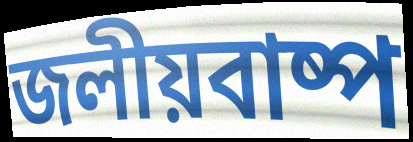
জলীয়বাষ্প